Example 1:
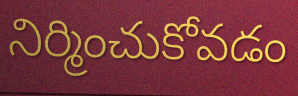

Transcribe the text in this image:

నిర్మించుకోవడం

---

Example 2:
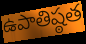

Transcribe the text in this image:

ఉపాతిష్ఠత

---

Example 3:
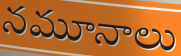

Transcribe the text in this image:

నమూనాలు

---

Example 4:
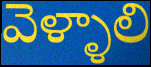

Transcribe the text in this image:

వెళ్ళాలి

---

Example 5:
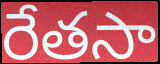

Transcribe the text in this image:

రేతసా